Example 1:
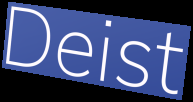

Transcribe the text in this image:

Deist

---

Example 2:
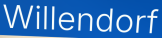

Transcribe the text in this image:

Willendorf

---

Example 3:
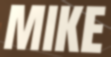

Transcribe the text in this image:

MIKE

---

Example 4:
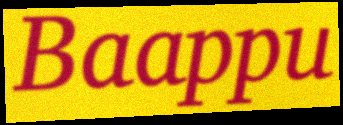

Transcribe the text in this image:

Baappu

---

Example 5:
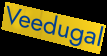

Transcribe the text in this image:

Veedugal